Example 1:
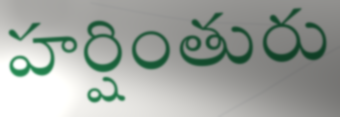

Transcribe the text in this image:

హర్షింతురు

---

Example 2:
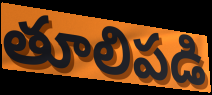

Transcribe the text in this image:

తూలిపడి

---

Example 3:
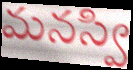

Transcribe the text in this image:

మనస్వి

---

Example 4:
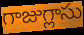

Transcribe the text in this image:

గాజుగ్లాసు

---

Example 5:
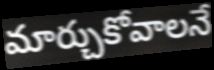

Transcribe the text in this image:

మార్చుకోవాలనే